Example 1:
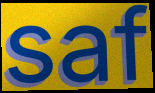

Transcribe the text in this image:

saf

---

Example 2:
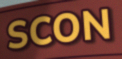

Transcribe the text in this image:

SCON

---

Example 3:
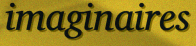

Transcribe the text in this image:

imaginaires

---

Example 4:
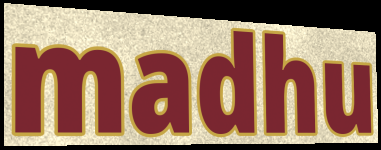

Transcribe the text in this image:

madhu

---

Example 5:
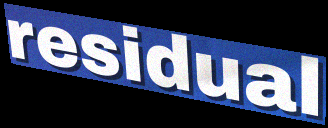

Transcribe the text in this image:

residual